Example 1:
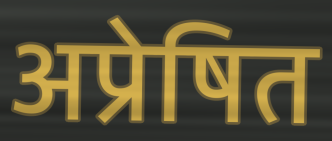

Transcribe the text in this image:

अप्रेषित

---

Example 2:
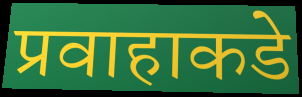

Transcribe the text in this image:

प्रवाहाकडे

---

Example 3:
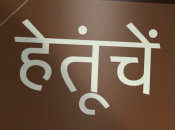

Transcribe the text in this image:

हेतूंचें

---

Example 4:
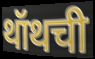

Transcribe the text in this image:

थॉथची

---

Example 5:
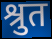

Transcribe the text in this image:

श्रुत